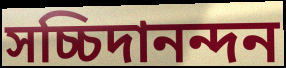
সচ্চিদানন্দন